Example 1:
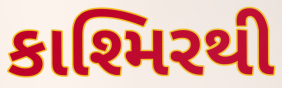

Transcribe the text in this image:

કાશ્મિરથી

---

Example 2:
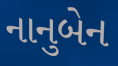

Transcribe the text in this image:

નાનુબેન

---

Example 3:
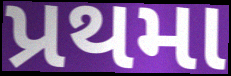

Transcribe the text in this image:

પ્રથમા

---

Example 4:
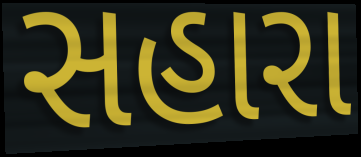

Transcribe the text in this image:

સહારા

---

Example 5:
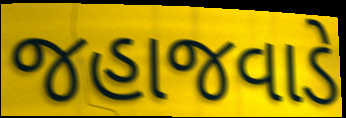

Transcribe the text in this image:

જહાજવાડે